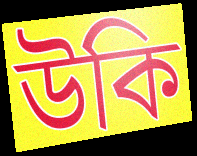
উকি